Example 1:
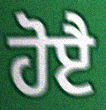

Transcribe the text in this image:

ਹੋੲੈ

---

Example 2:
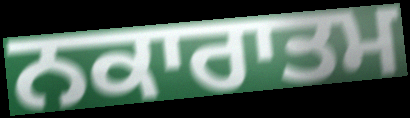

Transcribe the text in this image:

ਨਕਾਰਾਤਮ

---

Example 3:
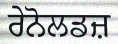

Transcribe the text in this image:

ਰੇਨੋਲਡਜ਼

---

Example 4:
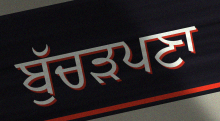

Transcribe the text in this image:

ਬੁੱਚੜਪਣਾ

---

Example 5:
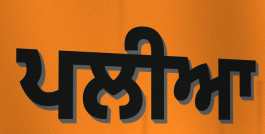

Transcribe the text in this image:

ਪਲੀਆ